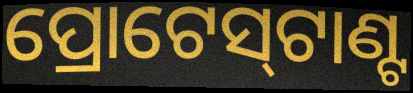
ପ୍ରୋଟେସ୍‌ଟାଣ୍ଟ